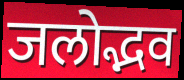
जलोद्भव